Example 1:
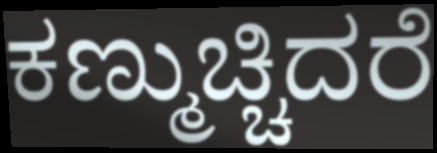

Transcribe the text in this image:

ಕಣ್ಮುಚ್ಚಿದರೆ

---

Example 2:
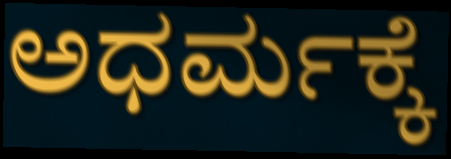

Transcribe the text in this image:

ಅಧರ್ಮಕ್ಕೆ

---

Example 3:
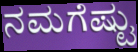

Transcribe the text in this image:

ನಮಗೆಷ್ಟು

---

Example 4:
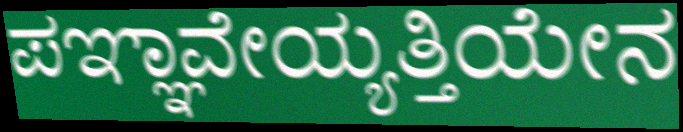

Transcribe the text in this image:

ಪಞ್ಞಾವೇಯ್ಯತ್ತಿಯೇನ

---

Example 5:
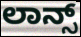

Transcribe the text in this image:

ಲಾನ್ಸ್